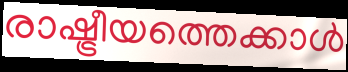
രാഷ്ട്രീയത്തെക്കാൾ